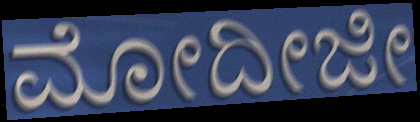
ಮೋದೀಜೀ